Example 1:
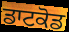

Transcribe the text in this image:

ਡਾਟਕੋਡ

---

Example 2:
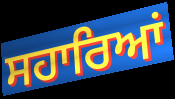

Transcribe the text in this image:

ਸਹਾਰਿਆਂ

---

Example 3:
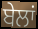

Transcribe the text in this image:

ਬੇਲਾਂ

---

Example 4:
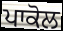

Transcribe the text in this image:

ਪਾਕੋਲ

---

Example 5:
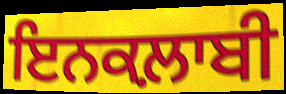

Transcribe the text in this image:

ਇਨਕ਼ਲਾਬੀ